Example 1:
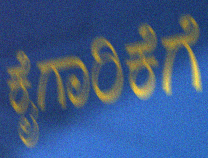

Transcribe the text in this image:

ಕೈಗಾರಿಕೆಗೆ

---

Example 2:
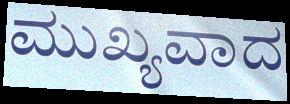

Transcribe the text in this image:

ಮುಖ್ಯವಾದ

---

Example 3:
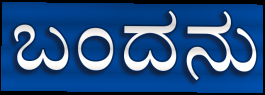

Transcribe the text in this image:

ಬಂದನು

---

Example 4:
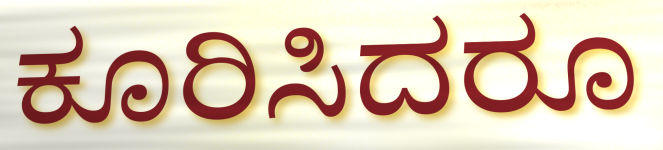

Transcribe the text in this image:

ಕೂರಿಸಿದರೂ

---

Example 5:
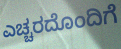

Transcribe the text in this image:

ಎಚ್ಚರದೊಂದಿಗೆ